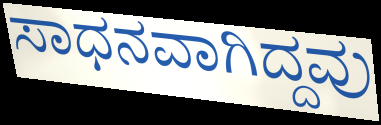
ಸಾಧನವಾಗಿದ್ದವು